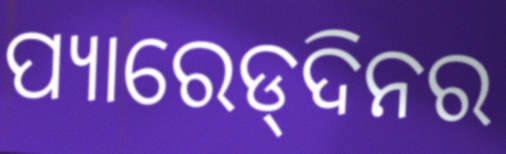
ପ୍ୟାରେଡ୍‌ଦିନର